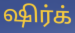
ஷிர்க்